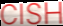
CISH